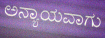
ಅನ್ಯಾಯವಾಗು